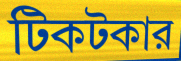
টিকটকার